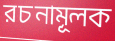
রচনামূলক